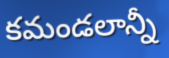
కమండలాన్నీ